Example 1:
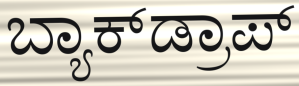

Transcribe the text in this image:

ಬ್ಯಾಕ್‌ಡ್ರಾಪ್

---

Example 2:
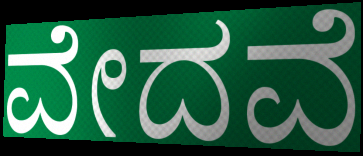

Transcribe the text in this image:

ವೇದವೆ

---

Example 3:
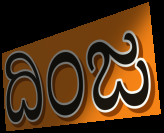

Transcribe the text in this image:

ದಿಂಜ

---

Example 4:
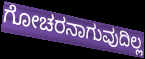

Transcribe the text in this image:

ಗೋಚರನಾಗುವುದಿಲ್ಲ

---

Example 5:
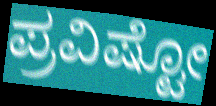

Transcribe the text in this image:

ಪ್ರವಿಷ್ಟೋ